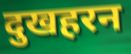
दुखहरन